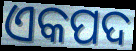
ଏକପଦ